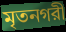
মৃতনগরী